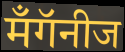
मँगॅनीज